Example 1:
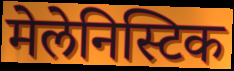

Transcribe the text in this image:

मेलेनिस्टिक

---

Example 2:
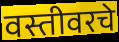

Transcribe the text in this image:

वस्तीवरचे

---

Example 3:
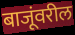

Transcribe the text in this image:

बाजूंवरील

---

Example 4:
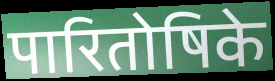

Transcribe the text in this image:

पारितोषिके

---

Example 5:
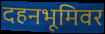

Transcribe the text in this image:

दहनभूमिवर